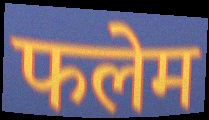
फलेम